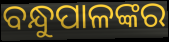
ବନ୍ଧୁପାଳଙ୍କର